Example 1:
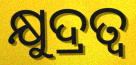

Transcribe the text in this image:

କ୍ଷୁଦ୍ରତ୍ୱ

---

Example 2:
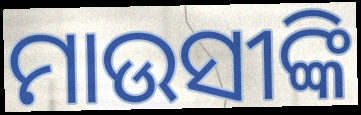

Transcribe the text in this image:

ମାଉସୀଙ୍କି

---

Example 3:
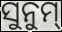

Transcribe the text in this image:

ସୁନୁମ୍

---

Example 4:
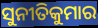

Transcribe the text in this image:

ସୁନୀତିକୁମାର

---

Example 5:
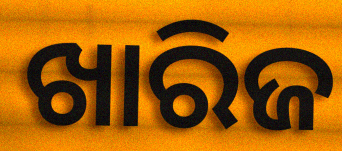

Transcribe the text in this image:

ଖାରିଜ